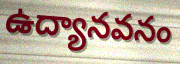
ఉద్యానవనం